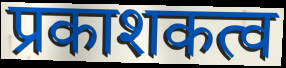
प्रकाशकत्व